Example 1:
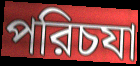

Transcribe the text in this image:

পরিচযা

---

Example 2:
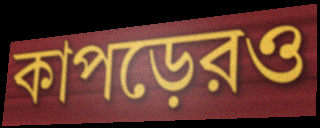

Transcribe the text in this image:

কাপড়েরও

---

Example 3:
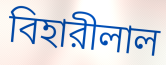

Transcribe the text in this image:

বিহারীলাল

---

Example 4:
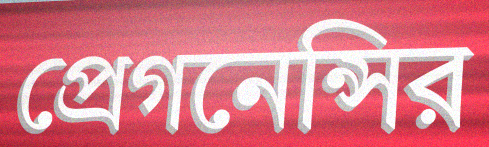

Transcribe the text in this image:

প্রেগনেন্সির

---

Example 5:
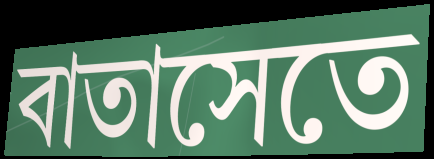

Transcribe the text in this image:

বাতাসেতে